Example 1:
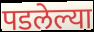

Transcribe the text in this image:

पडलेल्या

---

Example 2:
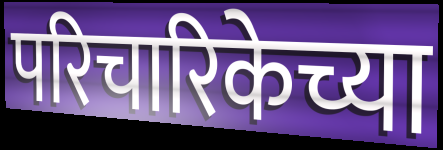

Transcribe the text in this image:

परिचारिकेच्या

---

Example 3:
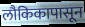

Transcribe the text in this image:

लौकिकापासून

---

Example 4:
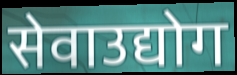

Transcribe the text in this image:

सेवाउद्योग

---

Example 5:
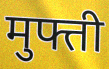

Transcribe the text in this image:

मुफ्ती